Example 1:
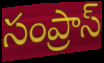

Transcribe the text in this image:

సంప్రాస్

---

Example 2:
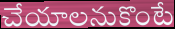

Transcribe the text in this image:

చేయాలనుకొంటే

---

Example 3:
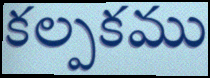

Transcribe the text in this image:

కల్పకము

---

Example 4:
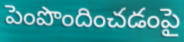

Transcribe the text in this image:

పెంపొందించడంపై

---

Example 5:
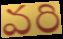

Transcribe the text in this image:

వరి